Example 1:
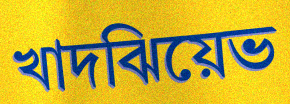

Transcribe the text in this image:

খাদঝিয়েভ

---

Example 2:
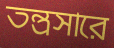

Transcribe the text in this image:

তন্ত্রসারে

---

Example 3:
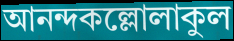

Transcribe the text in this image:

আনন্দকল্লোলাকুল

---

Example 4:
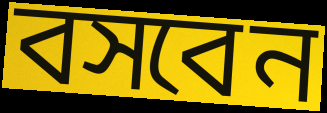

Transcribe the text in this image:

বসবেন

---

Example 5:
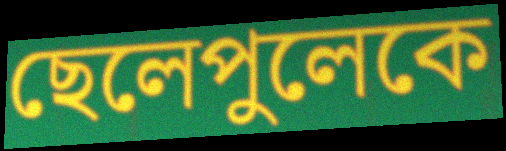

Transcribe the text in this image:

ছেলেপুলেকে